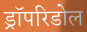
ड्रॉपरिडोल